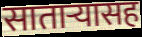
साताऱ्यासह